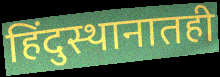
हिंदुस्थानातही